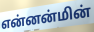
என்னன்மின்